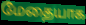
மேதையாக